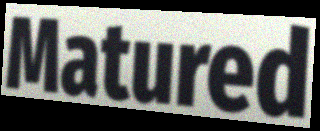
Matured